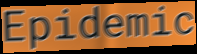
Epidemic